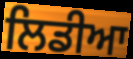
ਲਿਡੀਆ